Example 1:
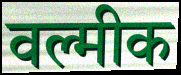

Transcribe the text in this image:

वल्मीक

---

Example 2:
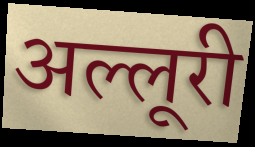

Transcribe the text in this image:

अल्लूरी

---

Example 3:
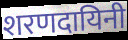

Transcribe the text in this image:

शरणदायिनी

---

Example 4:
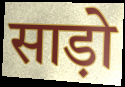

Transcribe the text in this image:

साड़ो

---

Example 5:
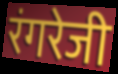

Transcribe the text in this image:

रंगरेजी